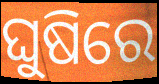
ଘୁଷିରେ